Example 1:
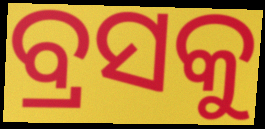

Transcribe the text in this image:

ବ୍ରସକୁ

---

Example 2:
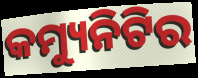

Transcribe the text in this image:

କମ୍ୟୁନିଟିର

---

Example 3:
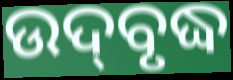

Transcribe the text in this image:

ଉଦ୍‌ବୃଦ୍ଧ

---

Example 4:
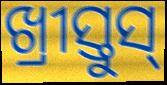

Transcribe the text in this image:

ଖ୍ରୀସ୍ତୁସ୍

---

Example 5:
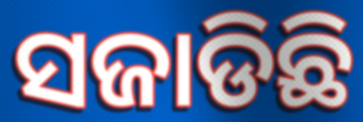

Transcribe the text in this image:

ସଜାଡିଛି